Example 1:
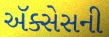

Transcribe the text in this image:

ઍક્સેસની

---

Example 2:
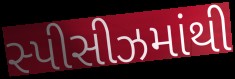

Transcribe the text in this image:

સ્પીસીઝમાંથી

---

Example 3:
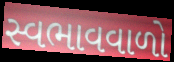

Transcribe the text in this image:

સ્વભાવવાળો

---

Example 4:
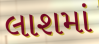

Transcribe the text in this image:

લાશમાં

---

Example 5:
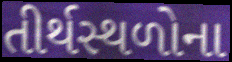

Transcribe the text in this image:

તીર્થસ્થળોના